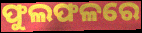
ଫୁଲଫଳରେ